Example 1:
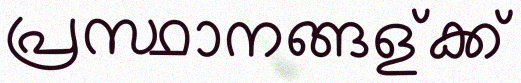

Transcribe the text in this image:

പ്രസ്ഥാനങ്ങള്ക്ക്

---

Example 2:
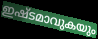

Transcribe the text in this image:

ഇഷ്ടമാവുകയും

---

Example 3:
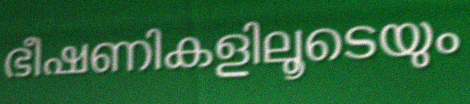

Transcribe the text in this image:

ഭീഷണികളിലൂടെയും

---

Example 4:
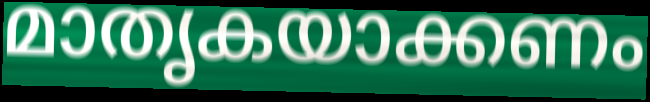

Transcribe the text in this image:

മാതൃകയാക്കണം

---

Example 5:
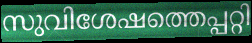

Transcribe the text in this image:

സുവിശേഷത്തെപ്പറ്റി